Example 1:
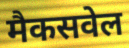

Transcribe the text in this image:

मैकसवेल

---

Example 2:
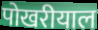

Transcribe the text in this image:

पोखरीयाल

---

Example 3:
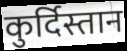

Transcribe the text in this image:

कुर्दिस्तान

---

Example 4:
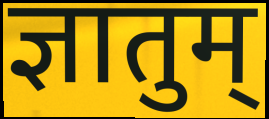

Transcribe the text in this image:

ज्ञातुम्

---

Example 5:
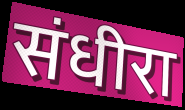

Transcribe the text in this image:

संधीरा